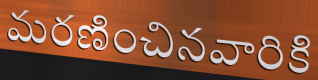
మరణించినవారికి